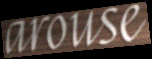
arouse